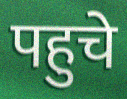
पहुचे